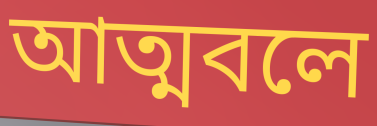
আত্মবলে